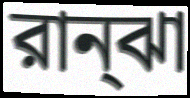
রান্ঝা